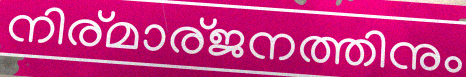
നിര്മാര്ജനത്തിനും